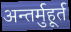
अन्तर्मुहूर्त